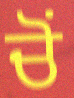
ਚੋਂ